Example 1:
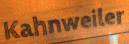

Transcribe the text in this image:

Kahnweiler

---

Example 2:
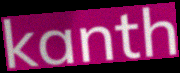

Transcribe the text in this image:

kanth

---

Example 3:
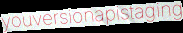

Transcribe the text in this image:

youversionapistaging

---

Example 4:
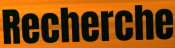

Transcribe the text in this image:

Recherche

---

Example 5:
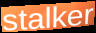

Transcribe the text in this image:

stalker